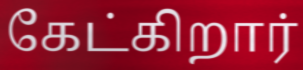
கேட்கிறார்